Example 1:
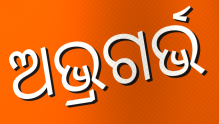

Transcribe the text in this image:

ଅଭ୍ରଗର୍ଭ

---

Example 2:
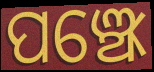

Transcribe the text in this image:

ପଞ୍ଝେ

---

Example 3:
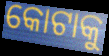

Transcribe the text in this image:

କୋଟାକୁ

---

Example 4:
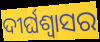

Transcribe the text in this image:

ଦୀର୍ଘଶ୍ବାସର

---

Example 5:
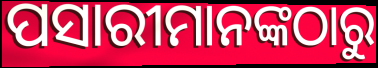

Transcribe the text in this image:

ପସାରୀମାନଙ୍କଠାରୁ